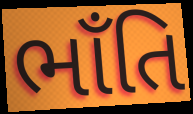
ભાઁતિ